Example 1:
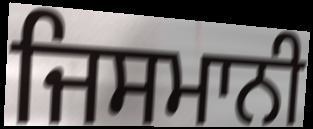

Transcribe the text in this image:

ਜਿਸਮਾਨੀ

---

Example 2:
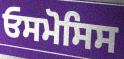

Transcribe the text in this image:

ਓਸਮੋਸਿਸ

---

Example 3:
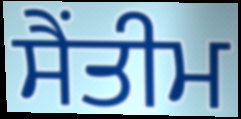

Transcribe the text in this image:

ਸੈਂਤੀਮ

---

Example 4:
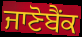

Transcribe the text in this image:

ਜਾਣੋਬੈਂਕ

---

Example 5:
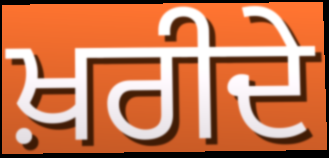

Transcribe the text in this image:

ਖ਼ਰੀਦੇ